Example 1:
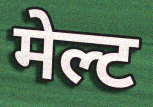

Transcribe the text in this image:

मेल्ट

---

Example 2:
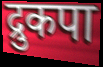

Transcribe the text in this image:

द्रुकपा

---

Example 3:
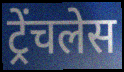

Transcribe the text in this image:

ट्रेंचलेस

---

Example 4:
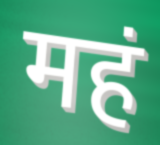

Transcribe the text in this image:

महं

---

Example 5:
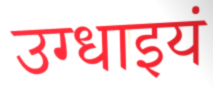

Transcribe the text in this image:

उग्धाइयं